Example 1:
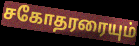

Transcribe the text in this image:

சகோதரரையும்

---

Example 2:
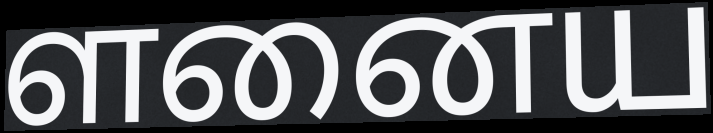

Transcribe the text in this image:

ளனைய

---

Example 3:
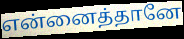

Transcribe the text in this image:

என்னைத்தானே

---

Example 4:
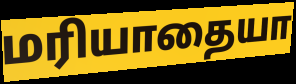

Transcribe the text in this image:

மரியாதையா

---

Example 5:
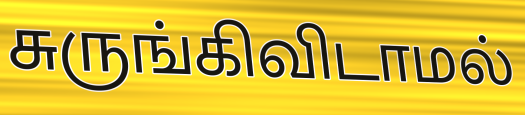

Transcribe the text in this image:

சுருங்கிவிடாமல்